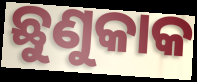
ଛୁଣୁକାକ